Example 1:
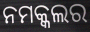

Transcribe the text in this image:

ନମକ୍କଲର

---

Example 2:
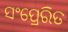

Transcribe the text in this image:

ସଂପ୍ରେରିତ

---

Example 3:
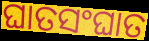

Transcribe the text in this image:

ଘାତସଂଘାତ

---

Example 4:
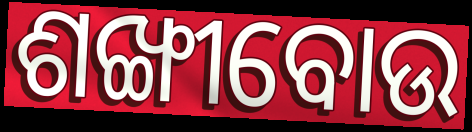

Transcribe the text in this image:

ଶଙ୍ଖୀବୋଉ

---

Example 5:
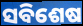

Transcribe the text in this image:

ସବିଶେଷ